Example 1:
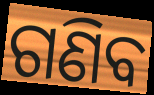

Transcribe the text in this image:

ଗଣିବ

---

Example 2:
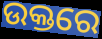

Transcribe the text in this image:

ଉକ୍ତରେ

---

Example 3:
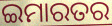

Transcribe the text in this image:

ଇମାରତର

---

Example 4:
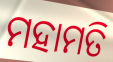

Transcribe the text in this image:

ମହାମତି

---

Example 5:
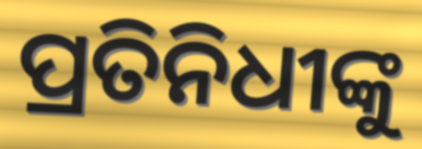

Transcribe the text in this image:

ପ୍ରତିନିଧୀଙ୍କୁ